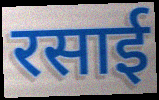
रसाई